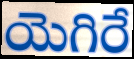
యెగిరే